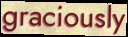
graciously